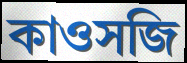
কাওসজি